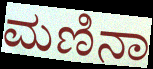
ಮಣಿನಾ